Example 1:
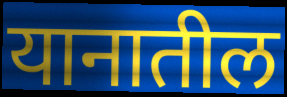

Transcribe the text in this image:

यानातील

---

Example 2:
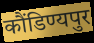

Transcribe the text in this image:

कौंडिण्यपुर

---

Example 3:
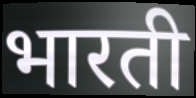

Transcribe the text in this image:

भारती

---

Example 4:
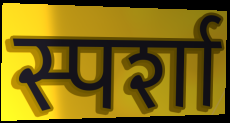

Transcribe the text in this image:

स्पर्शा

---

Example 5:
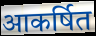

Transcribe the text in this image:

आकर्षित